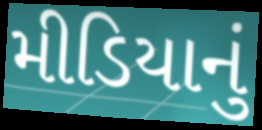
મીડિયાનું